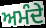
ਅਮੰਦੇ